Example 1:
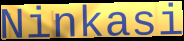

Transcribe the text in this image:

Ninkasi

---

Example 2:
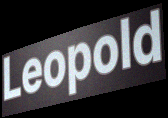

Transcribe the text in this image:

Leopold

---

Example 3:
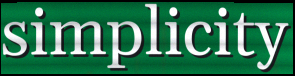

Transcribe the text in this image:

simplicity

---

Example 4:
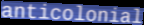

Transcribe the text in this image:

anticolonial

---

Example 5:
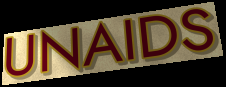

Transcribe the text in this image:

UNAIDS